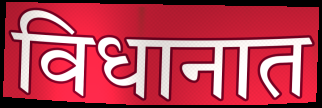
विधानात